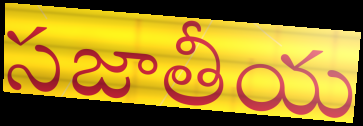
సజాతీయ